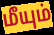
மீயும்